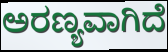
ಅರಣ್ಯವಾಗಿದೆ